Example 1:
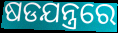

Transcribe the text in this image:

ଷଡଯନ୍ତ୍ରରେ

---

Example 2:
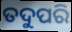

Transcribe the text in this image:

ତଦୁପରି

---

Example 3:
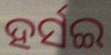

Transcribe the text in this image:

ହର୍ସଇ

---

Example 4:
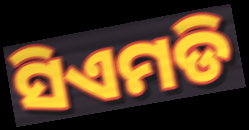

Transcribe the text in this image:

ସିଏମଡି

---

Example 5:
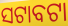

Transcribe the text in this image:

ସଟାବଟା